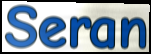
Seran